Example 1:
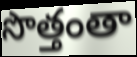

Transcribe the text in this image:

సొత్తంతా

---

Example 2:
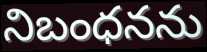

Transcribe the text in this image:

నిబంధనను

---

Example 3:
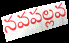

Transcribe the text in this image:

నవపల్లవ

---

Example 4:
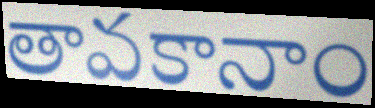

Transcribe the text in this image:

తావకానాం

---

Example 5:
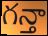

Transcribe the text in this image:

గన్తా